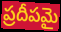
ప్రదీపమై